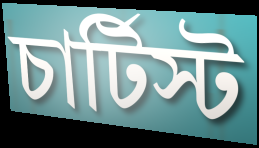
চার্টিস্ট